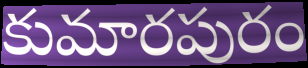
కుమారపురం